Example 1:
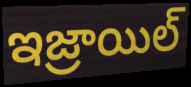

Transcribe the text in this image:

ఇజ్రాయిల్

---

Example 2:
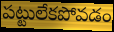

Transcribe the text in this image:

పట్టులేకపోవడం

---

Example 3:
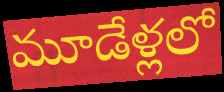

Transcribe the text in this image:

మూడేళ్లలో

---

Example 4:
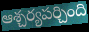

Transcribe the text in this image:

ఆశ్చర్యపర్చింది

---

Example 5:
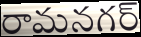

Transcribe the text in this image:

రామనగర్